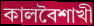
কালবৈশাখী